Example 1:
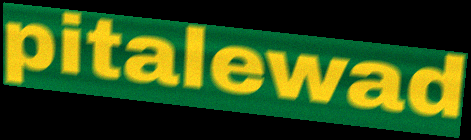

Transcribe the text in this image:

pitalewad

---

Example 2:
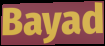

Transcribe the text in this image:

Bayad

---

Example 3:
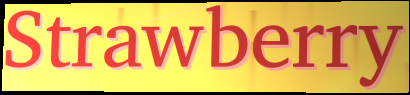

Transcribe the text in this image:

Strawberry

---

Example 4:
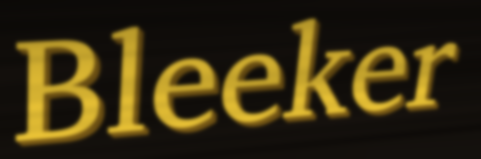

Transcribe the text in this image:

Bleeker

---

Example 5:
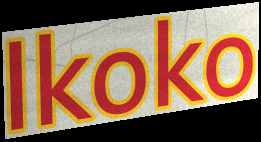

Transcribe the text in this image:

Ikoko